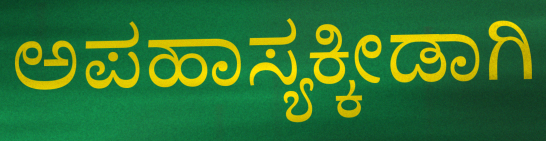
ಅಪಹಾಸ್ಯಕ್ಕೀಡಾಗಿ